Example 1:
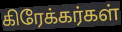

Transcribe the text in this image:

கிரேக்கர்கள்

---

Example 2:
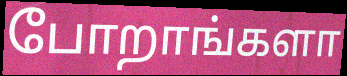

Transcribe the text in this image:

போறாங்களா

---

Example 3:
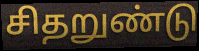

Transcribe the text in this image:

சிதறுண்டு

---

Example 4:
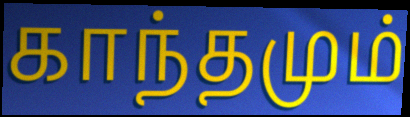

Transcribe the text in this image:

காந்தமும்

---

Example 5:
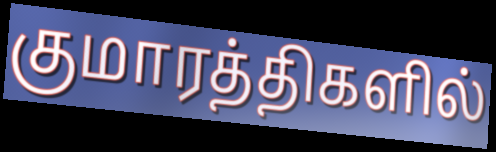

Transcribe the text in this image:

குமாரத்திகளில்